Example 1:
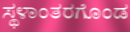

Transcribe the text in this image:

ಸ್ಥಳಾಂತರಗೊಂಡ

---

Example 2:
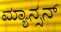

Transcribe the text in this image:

ಮ್ಯಾನ್ಸನ್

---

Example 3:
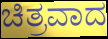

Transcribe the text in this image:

ಚಿತ್ರವಾದ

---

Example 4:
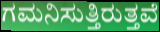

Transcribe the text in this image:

ಗಮನಿಸುತ್ತಿರುತ್ತವೆ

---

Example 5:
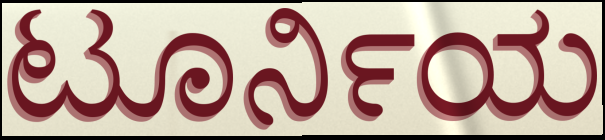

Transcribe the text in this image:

ಟೂರ್ನಿಯ